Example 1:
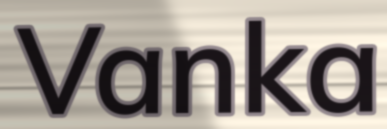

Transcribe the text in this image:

Vanka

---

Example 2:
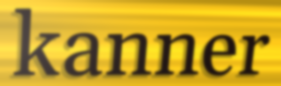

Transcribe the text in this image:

kanner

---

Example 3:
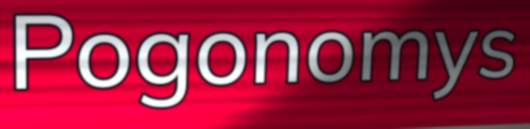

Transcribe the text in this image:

Pogonomys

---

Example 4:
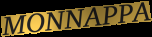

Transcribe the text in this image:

MONNAPPA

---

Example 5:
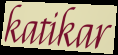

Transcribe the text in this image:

katikar